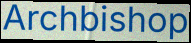
Archbishop